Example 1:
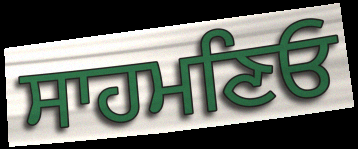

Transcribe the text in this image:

ਸਾਹਮਣਿਓ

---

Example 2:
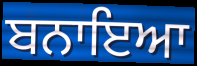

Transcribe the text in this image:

ਬਨਾਇਆ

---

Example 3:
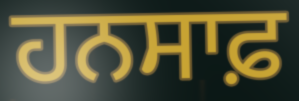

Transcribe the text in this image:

ਹਨਸਾਫ਼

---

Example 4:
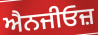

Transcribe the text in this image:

ਐਨਜੀਓਜ਼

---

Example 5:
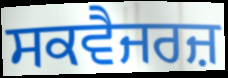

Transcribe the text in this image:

ਸਕਵੈਜਰਜ਼